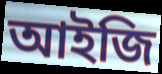
আইজি